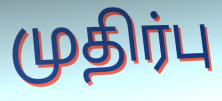
முதிர்பு